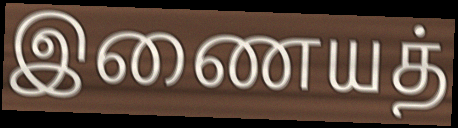
இணையத்